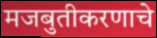
मजबुतीकरणाचे